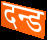
दन्ड